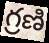
గ్రణి